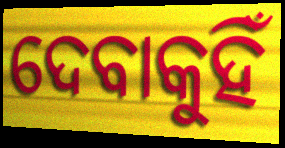
ଦେବାକୁହିଁ